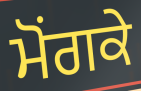
ਮੋਂਗਕੇ